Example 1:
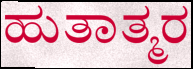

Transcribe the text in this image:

ಹುತಾತ್ಮರ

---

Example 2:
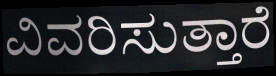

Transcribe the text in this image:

ವಿವರಿಸುತ್ತಾರೆ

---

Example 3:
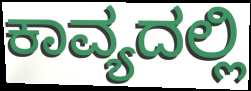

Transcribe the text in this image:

ಕಾವ್ಯದಲ್ಲಿ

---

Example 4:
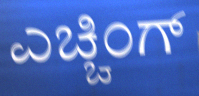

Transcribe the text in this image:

ಎಚ್ಚಿಂಗ್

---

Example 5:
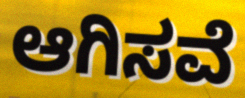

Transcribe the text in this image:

ಆಗಿಸವೆ